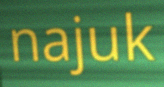
najuk